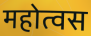
महोत्वस